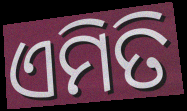
ଏମିତି